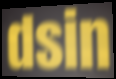
dsin